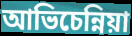
আভিচেন্নিয়া